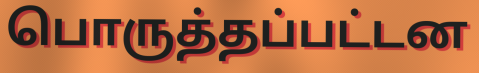
பொருத்தப்பட்டன